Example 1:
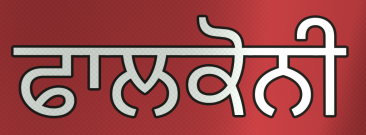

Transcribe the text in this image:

ਫਾਲਕੋਨੀ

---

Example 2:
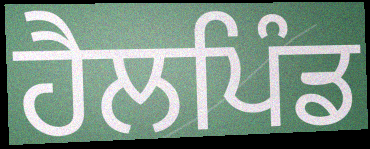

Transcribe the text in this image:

ਹੈਲਪਿੰਡ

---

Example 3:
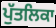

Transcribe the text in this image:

ਪੁੱਤਲਿਕਾ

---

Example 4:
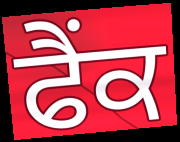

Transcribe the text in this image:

ਫੈਂਕ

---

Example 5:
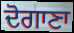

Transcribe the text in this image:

ਦੋਗਾਣਾ